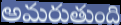
అమరుతుంది